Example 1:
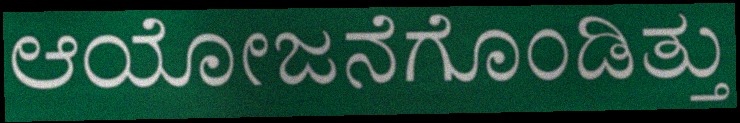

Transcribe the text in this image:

ಆಯೋಜನೆಗೊಂಡಿತ್ತು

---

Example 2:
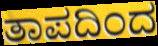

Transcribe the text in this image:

ತಾಪದಿಂದ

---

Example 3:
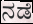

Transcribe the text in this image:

ನಡೆ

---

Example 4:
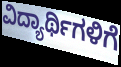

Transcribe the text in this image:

ವಿದ್ಯಾರ್ಥಿಗಳಿಗೆ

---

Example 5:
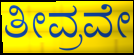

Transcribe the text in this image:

ತೀವ್ರವೇ